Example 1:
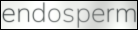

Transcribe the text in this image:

endosperm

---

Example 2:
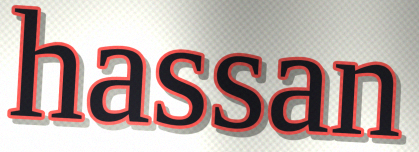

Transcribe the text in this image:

hassan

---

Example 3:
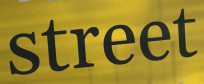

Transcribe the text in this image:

street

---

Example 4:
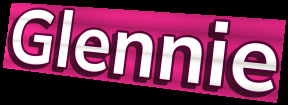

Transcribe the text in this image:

Glennie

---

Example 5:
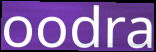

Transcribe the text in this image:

oodra